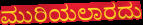
ಮುರಿಯಲಾರದು